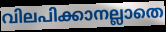
വിലപിക്കാനല്ലാതെ